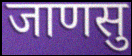
जाणसु